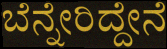
ಬೆನ್ನೇರಿದ್ದೇನೆ